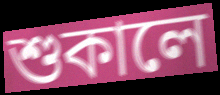
শুকালে